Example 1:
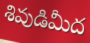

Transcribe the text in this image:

శివుడిమీద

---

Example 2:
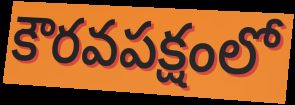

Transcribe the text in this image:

కౌరవపక్షంలో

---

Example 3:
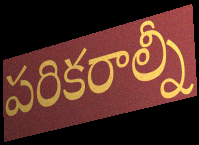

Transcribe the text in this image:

పరికరాల్నీ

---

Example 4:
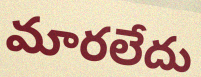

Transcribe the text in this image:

మారలేదు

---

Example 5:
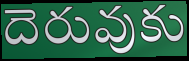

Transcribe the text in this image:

దెరువుకు